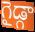
గైడ్గా